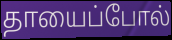
தாயைப்போல்